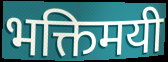
भक्तिमयी